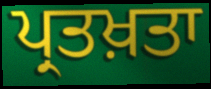
ਪ੍ਰਤਖ਼ਤਾ